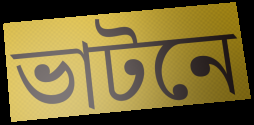
ভাটনে